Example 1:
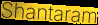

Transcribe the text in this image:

Shantaram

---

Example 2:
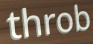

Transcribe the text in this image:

throb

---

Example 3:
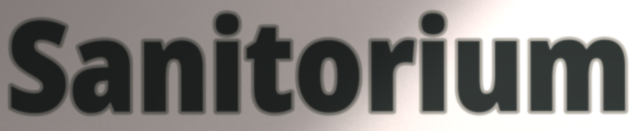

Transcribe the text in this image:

Sanitorium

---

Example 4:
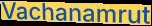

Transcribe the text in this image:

Vachanamrut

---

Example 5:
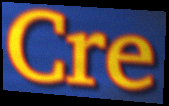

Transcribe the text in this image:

Cre